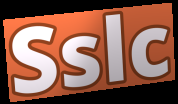
Sslc